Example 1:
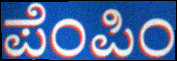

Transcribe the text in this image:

ಪೆಂಪಿಂ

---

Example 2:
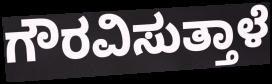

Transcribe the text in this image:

ಗೌರವಿಸುತ್ತಾಳೆ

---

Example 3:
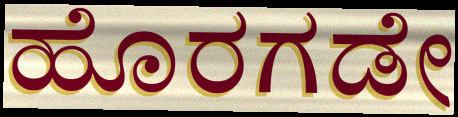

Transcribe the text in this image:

ಹೊರಗಡೇ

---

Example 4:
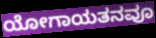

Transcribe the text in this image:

ಯೋಗಾಯತನವೂ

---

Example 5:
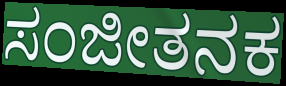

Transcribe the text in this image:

ಸಂಜೀತನಕ